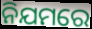
ନିଯମରେ